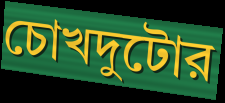
চোখদুটোর